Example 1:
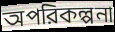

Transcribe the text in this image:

অপরিকল্পনা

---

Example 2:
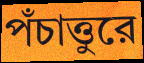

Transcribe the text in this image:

পঁচাত্তুরে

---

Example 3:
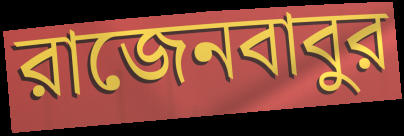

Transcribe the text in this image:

রাজেনবাবুর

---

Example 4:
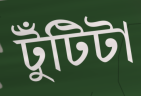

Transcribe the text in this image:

টুঁটিটা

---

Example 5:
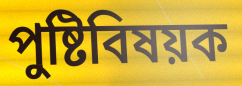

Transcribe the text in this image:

পুষ্টিবিষয়ক